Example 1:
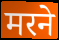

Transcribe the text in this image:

मरने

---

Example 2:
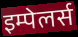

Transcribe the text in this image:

इम्पेलर्स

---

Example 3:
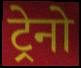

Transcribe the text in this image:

ट्रेनो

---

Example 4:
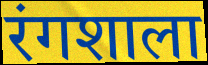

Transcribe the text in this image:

रंगशाला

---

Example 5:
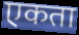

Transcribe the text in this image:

एकता